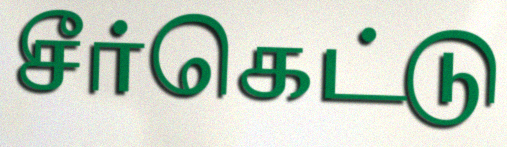
சீர்கெட்டு